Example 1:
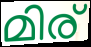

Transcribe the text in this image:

മിര്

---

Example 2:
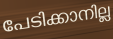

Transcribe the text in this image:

പേടിക്കാനില്ല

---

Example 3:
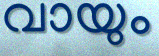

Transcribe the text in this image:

വായും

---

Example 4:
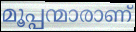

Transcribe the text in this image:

മൂപ്പന്മാരാണ്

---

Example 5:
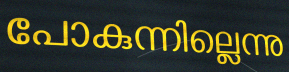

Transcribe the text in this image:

പോകുന്നില്ലെന്നു